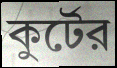
কুর্টের